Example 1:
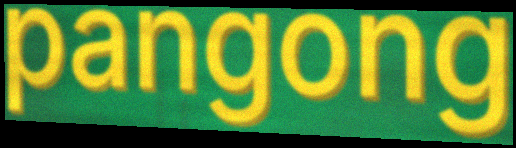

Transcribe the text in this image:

pangong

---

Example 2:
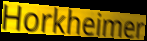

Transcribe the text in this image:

Horkheimer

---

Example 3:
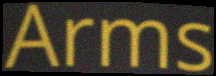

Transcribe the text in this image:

Arms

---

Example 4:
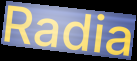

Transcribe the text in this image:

Radia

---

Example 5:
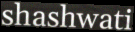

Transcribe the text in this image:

shashwati